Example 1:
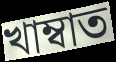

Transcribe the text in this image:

খাম্বাত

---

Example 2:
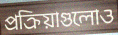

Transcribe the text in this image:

প্রক্রিয়াগুলোও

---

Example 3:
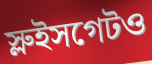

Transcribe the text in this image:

স্লুইসগেটও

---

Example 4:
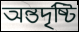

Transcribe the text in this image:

অন্তর্দৃষ্টি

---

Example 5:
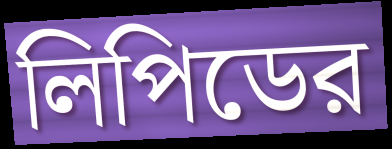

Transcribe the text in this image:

লিপিডের